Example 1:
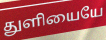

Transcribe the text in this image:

துளியையே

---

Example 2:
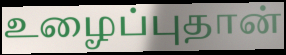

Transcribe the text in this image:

உழைப்புதான்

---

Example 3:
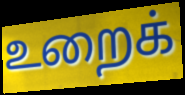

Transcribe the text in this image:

உறைக்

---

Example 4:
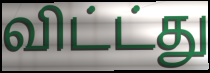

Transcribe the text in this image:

விட்ட்து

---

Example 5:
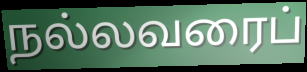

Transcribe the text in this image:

நல்லவரைப்